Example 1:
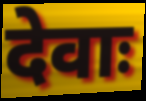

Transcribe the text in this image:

देवाः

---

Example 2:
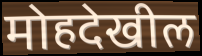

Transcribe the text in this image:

मोहदेखील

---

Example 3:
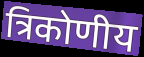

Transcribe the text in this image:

त्रिकोणीय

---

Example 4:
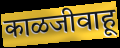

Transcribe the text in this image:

काळजीवाहू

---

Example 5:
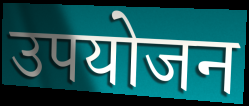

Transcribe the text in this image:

उपयोजन